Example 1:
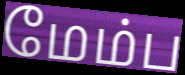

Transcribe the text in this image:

மேம்ப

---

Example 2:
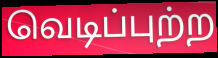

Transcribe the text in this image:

வெடிப்புற்ற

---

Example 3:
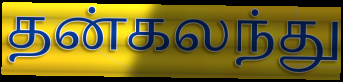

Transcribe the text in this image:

தன்கலந்து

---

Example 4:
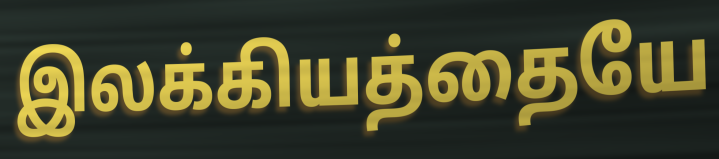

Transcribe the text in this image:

இலக்கியத்தையே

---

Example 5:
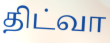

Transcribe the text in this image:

திட்வா